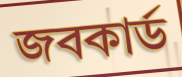
জবকার্ড